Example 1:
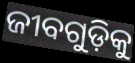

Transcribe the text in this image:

ଜୀବଗୁଡ଼ିକୁ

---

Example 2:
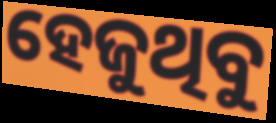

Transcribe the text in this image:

ହେଜୁଥିବୁ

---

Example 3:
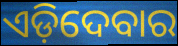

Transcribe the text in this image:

ଏଡ଼ିଦେବାର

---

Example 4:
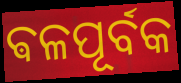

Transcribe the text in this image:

ଵଳପୂର୍ବକ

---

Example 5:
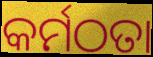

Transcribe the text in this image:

କର୍ମଠତା